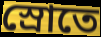
স্রোতে